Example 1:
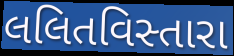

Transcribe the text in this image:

લલિતવિસ્તારા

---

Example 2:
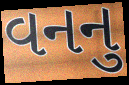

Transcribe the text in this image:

વનનુ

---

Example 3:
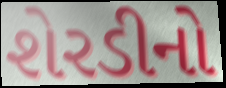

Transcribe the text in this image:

શેરડીનો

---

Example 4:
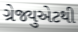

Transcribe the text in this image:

ગ્રેજ્યુએટથી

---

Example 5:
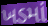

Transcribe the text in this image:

ખડમાં